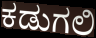
ಕಡುಗಲಿ